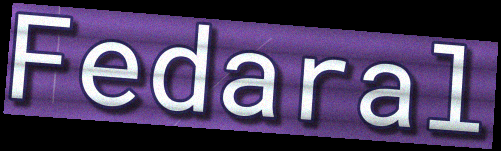
Fedaral